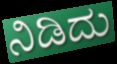
ನಿಡಿದು